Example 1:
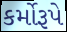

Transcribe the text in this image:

કર્મોરૂપે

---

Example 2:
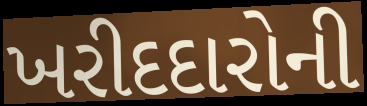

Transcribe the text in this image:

ખરીદદારોની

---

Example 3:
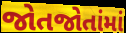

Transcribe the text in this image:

જોતજોતાંમાં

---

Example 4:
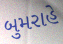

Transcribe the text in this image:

બુમરાહે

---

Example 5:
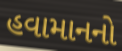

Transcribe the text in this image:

હવામાનનો